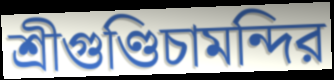
শ্রীগুণ্ডিচামন্দির